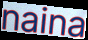
naina